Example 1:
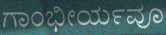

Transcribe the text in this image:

ಗಾಂಭೀರ್ಯವೂ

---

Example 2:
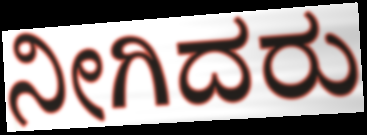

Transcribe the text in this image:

ನೀಗಿದರು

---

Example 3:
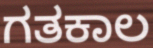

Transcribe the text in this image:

ಗತಕಾಲ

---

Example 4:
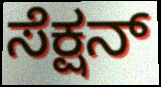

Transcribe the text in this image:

ಸೆಕ್ಷನ್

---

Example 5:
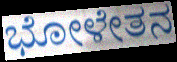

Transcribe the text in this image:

ಭೋಳೇತನ